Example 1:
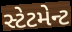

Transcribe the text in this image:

સ્ટેટમેન્ટ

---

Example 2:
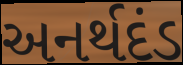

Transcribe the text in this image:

અનર્થદંડ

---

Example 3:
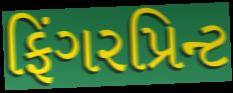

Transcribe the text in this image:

ફિંગરપ્રિન્ટ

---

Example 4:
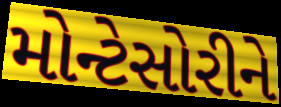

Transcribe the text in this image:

મોન્ટેસોરીને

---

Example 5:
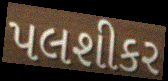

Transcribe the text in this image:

પલશીકર